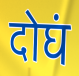
दोघं